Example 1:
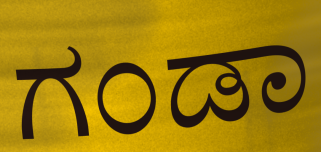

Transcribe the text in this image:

ಗಂಡಾ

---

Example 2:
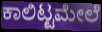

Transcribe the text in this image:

ಕಾಲಿಟ್ಟಮೇಲೆ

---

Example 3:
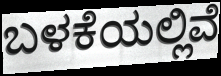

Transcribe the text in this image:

ಬಳಕೆಯಲ್ಲಿವೆ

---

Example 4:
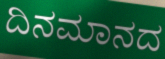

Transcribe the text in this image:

ದಿನಮಾನದ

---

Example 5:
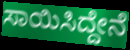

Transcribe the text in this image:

ಸಾಯಿಸಿದ್ದೇನೆ